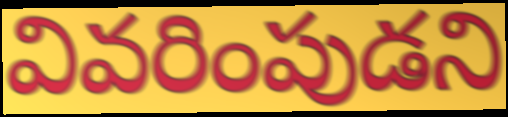
వివరింపుడని